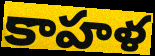
కాహళ